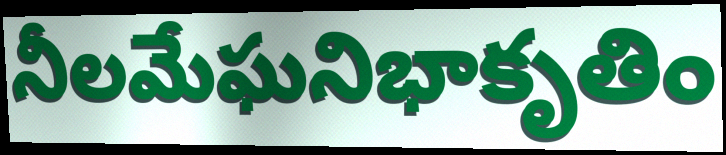
నీలమేఘనిభాకృతిం